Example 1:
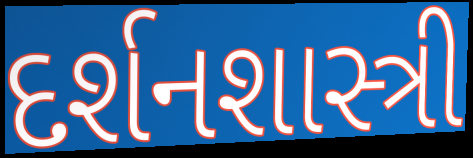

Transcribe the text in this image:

દર્શનશાસ્ત્રી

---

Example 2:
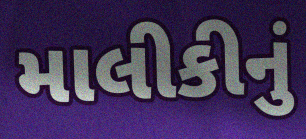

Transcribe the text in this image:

માલીકીનું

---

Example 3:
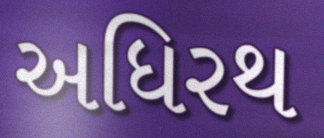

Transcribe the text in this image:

અધિરથ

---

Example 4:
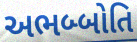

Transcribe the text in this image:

અભબ્બોતિ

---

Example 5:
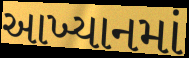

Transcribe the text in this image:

આખ્યાનમાં